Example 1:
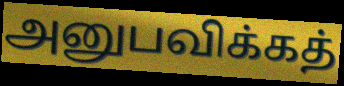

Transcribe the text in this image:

அனுபவிக்கத்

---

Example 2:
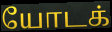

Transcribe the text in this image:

யோடக்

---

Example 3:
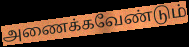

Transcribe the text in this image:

அணைக்கவேண்டும்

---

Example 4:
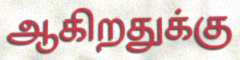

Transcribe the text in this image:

ஆகிறதுக்கு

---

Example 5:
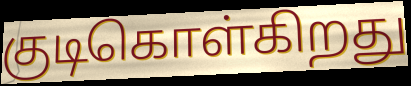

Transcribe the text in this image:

குடிகொள்கிறது